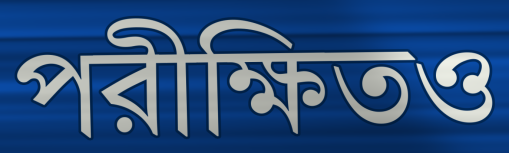
পরীক্ষিতও